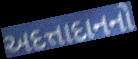
અદત્તાદાનનો